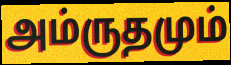
அம்ருதமும்